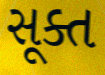
સૂક્ત